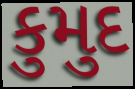
કુમુદ